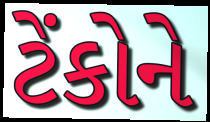
ટેંકોને